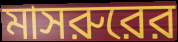
মাসরুরের